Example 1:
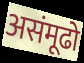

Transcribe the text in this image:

असंमूढो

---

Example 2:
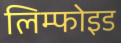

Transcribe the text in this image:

लिम्फोइड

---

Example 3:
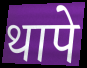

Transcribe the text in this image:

थापे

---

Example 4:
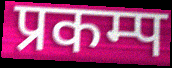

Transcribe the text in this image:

प्रकम्प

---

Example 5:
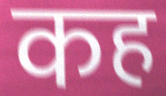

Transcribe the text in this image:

कह